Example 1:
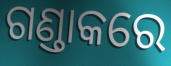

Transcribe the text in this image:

ଗଣ୍ଡାକରେ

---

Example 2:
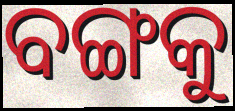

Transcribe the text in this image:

ବଙ୍ଗକୁ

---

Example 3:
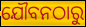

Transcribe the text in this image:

ଯୌବନଠାରୁ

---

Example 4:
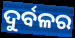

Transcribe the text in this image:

ଦୁର୍ବଳର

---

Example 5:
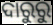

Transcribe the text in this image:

ଦାରୁରୁ